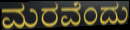
ಮರವೆಂದು